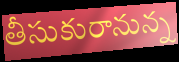
తీసుకురానున్న